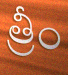
త్రీం